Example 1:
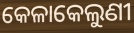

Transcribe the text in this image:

କେଳାକେଲୁଣୀ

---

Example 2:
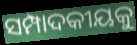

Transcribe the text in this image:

ସମ୍ପାଦକୀୟକୁ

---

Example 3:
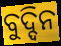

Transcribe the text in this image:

ବୁଦ୍ଦିନ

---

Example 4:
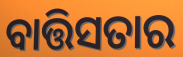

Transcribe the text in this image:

ବାତ୍ତିସତାର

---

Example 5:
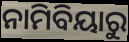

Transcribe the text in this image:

ନାମିବିୟାରୁ